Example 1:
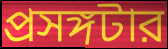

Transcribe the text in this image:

প্রসঙ্গটার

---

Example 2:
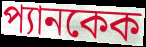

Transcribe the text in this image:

প্যানকেক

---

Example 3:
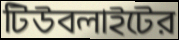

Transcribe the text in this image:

টিউবলাইটের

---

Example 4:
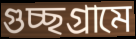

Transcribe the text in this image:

গুচ্ছগ্রামে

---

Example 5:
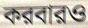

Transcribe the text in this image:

করবারও